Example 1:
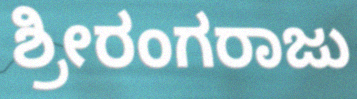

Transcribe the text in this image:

ಶ್ರೀರಂಗರಾಜು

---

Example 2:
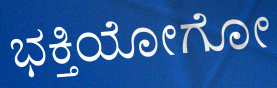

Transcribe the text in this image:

ಭಕ್ತಿಯೋಗೋ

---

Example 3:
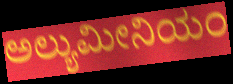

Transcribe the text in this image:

ಅಲ್ಯುಮೀನಿಯಂ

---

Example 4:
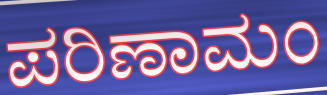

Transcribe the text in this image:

ಪರಿಣಾಮಂ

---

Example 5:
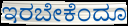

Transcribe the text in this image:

ಇರಬೇಕೆಂದೂ